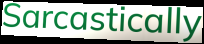
Sarcastically